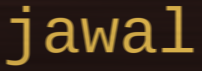
jawal